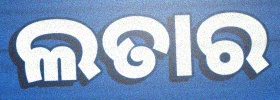
ଲତାର